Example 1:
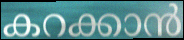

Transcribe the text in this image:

കറക്കാൻ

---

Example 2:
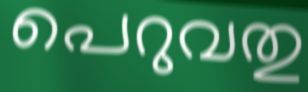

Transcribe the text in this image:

പെറുവതു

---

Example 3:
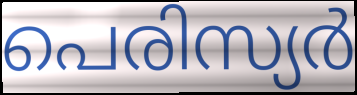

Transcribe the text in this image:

പെരിസ്യർ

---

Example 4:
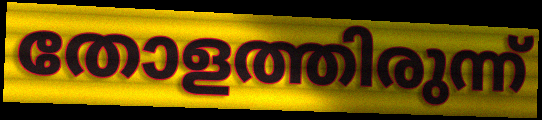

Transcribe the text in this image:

തോളത്തിരുന്ന്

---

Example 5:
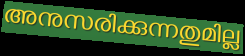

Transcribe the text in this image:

അനുസരിക്കുന്നതുമില്ല